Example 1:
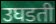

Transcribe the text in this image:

उघडती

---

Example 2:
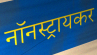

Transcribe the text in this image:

नॉनस्ट्रायकर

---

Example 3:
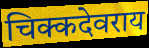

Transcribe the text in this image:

चिक्कदेवराय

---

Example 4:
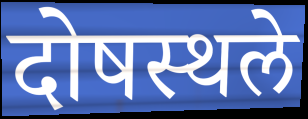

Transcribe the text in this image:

दोषस्थले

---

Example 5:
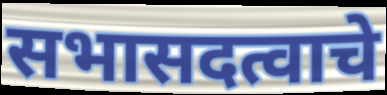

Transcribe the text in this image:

सभासदत्वाचे